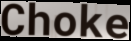
Choke